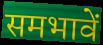
समभावें